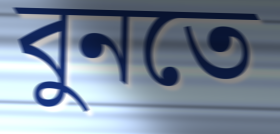
বুনতে